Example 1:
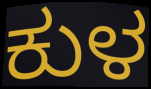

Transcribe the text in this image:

ಕುಳ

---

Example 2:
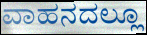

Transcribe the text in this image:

ವಾಹನದಲ್ಲೂ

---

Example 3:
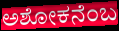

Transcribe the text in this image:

ಅಶೋಕನೆಂಬ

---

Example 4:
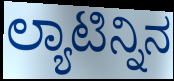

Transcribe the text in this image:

ಲ್ಯಾಟಿನ್ನಿನ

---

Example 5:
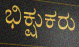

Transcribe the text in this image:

ಭಿಕ್ಷುಕರು